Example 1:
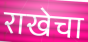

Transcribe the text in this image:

राखेचा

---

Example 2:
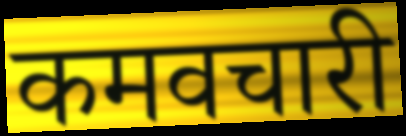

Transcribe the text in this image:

कमवचारी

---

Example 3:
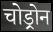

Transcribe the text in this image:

चोड्रोन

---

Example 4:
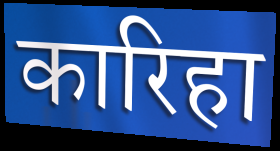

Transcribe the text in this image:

कारिहा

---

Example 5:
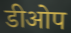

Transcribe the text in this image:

डीओप